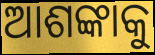
ଆଶଙ୍କାକୁ